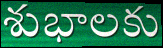
శుభాలకు